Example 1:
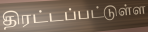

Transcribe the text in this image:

திரட்டப்பட்டுள்ள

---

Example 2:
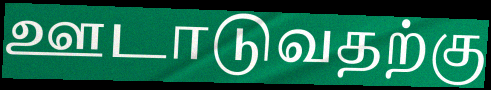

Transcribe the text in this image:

ஊடாடுவதற்கு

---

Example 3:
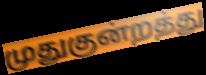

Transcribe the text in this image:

முதுகுன்றத்து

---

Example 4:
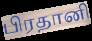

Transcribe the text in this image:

பிரதானி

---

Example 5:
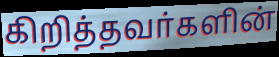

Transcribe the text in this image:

கிறித்தவர்களின்